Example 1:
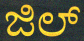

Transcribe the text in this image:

ಜಿಲ್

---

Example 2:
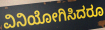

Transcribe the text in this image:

ವಿನಿಯೋಗಿಸಿದರೂ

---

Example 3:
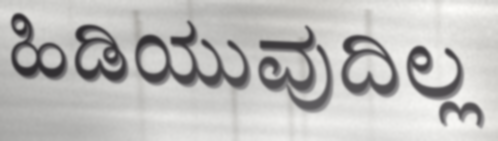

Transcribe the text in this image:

ಹಿಡಿಯುವುದಿಲ್ಲ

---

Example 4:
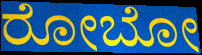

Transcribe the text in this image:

ರೋಬೋ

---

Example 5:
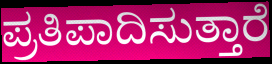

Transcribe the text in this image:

ಪ್ರತಿಪಾದಿಸುತ್ತಾರೆ